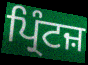
ਪ੍ਰਿੰਟਜ਼